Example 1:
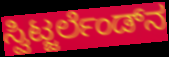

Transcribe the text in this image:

ಸ್ವಿಟ್ಜರ್ಲೆಂಡ್‌ನ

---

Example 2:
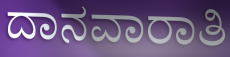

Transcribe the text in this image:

ದಾನವಾರಾತಿ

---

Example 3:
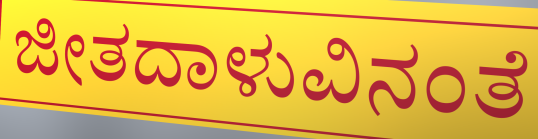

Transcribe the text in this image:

ಜೀತದಾಳುವಿನಂತೆ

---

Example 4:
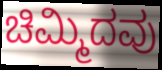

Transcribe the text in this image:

ಚಿಮ್ಮಿದವು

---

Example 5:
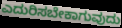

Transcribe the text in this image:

ಎದುರಿಸಬೇಕಾಗುವುದು